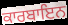
ਕਾਰਬਾਇਨ